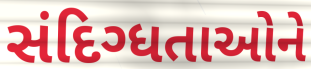
સંદિગ્ધતાઓને